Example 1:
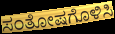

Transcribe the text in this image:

ಸಂತೋಷಗೊಳಿಸಿ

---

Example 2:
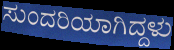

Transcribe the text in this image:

ಸುಂದರಿಯಾಗಿದ್ದಳು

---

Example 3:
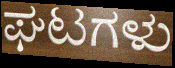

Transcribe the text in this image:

ಘಟಗಳು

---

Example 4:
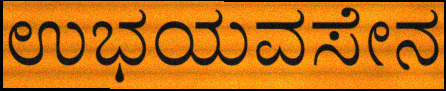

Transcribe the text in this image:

ಉಭಯವಸೇನ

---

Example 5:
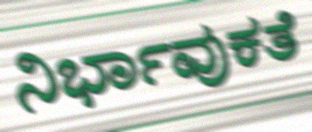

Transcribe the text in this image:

ನಿರ್ಭಾವುಕತೆ